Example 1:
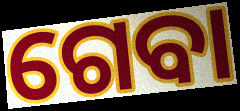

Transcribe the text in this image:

ଗେବା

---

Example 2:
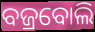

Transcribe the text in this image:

ବଜ୍ରବୋଲି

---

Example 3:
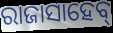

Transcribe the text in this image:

ରାଜାସାହେବ୍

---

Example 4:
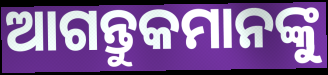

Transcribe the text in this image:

ଆଗନ୍ତୁକମାନଙ୍କୁ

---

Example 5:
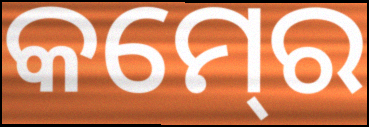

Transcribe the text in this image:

କମ୍‍ରେ